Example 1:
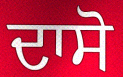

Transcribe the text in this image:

ਦਾਸੋ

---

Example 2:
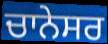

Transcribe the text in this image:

ਚਾਨੇਸਰ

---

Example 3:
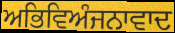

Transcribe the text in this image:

ਅਭਿਵਿਅੰਜਨਾਵਾਦ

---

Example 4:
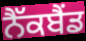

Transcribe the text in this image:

ਨੈੱਕਬੈਂਡ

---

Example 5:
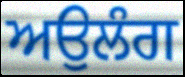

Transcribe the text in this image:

ਅਉਲੰਗ